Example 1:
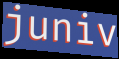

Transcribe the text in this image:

juniv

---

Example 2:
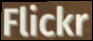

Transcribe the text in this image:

Flickr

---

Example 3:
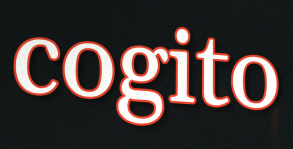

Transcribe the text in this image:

cogito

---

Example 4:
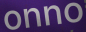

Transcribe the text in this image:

onno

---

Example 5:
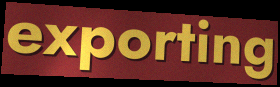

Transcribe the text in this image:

exporting